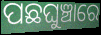
ପଛଘୁଞ୍ଚାରେ